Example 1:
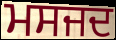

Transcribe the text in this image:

ਮਸਜਦ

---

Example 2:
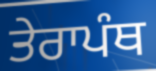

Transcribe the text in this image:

ਤੇਰਾਪੰਥ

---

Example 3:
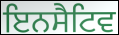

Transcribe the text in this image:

ਇਨਸੈਟਿਵ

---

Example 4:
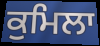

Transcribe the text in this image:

ਕੁਮਿਲਾ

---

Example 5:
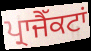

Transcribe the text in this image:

ਪ੍ਰਾਜੈੱਕਟਾਂ